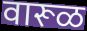
वारूळ